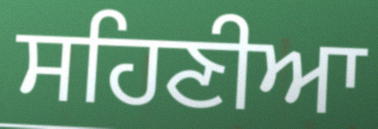
ਸਹਿਣੀਆ